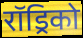
रॉड्रिको